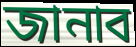
জানাব